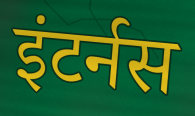
इंटर्नस